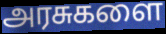
அரசுகளை